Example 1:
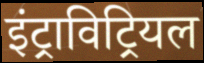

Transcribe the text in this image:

इंट्राविट्रियल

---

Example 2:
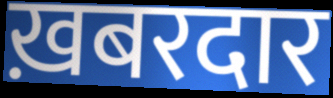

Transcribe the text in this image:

ख़बरदार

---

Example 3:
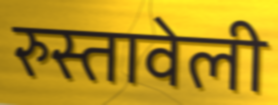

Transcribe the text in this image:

रुस्तावेली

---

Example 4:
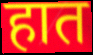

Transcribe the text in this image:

हात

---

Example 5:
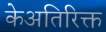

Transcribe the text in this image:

केअतिरिक्त